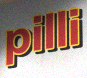
pilli